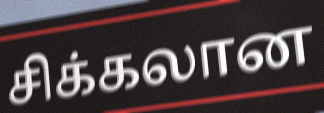
சிக்கலான